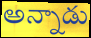
అన్నాడు